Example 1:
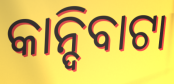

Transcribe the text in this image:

କାନ୍ଦିବାଟା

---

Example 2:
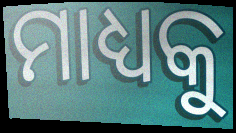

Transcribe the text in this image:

ମାଧ୍ୟକୁ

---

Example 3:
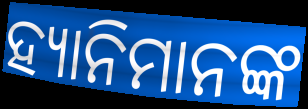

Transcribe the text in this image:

ହ୍ୟାନିମାନଙ୍କ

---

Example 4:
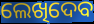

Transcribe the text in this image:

ଲେଖିଦେବ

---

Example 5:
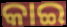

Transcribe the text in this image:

କାଇ